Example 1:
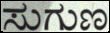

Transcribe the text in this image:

ಸುಗುಣ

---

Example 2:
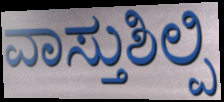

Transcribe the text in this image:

ವಾಸ್ತುಶಿಲ್ಪಿ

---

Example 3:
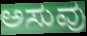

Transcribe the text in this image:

ಅಸುವು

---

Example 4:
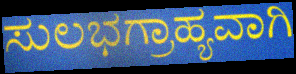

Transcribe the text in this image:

ಸುಲಭಗ್ರಾಹ್ಯವಾಗಿ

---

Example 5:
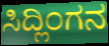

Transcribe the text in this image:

ಸಿದ್ಲಿಂಗನ